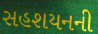
સહશયનની